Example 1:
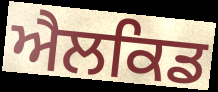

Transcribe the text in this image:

ਐਲਕਿਡ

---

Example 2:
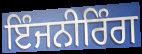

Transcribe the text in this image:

ਇੰਜਨੀਰਿੰਗ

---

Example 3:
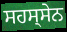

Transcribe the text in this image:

ਸਹਸ੍ਸੇਨ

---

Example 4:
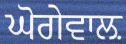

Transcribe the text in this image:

ਘੋਗੇਵਾਲ਼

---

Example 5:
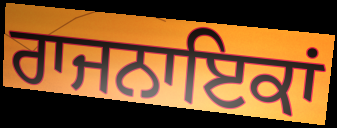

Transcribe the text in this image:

ਰਾਜਨਾਇਕਾਂ